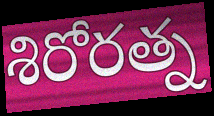
శిరోరత్న